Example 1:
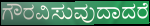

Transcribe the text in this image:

ಗೌರವಿಸುವುದಾದರೆ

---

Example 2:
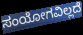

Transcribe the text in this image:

ಸಂಯೋಗವಿಲ್ಲದೆ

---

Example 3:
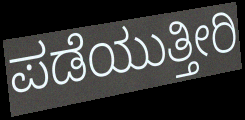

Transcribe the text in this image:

ಪಡೆಯುತ್ತೀರಿ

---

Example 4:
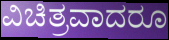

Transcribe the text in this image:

ವಿಚಿತ್ರವಾದರೂ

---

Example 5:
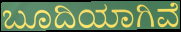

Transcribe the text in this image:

ಬೂದಿಯಾಗಿವೆ